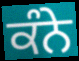
ਕੰਨੇ